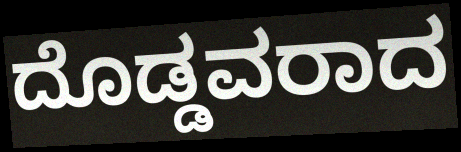
ದೊಡ್ಡವರಾದ